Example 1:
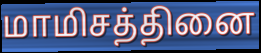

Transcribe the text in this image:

மாமிசத்தினை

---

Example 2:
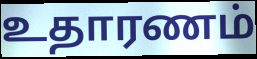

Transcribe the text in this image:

உதாரணம்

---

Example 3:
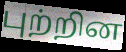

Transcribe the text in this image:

புற்றின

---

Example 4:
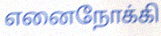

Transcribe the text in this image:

எனைநோக்கி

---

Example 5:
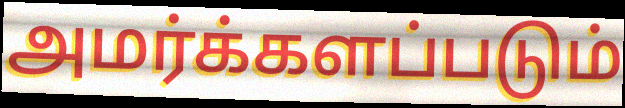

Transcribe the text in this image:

அமர்க்களப்படும்